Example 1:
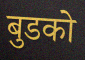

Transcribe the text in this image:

बुडको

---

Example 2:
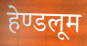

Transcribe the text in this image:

हेण्डलूम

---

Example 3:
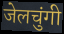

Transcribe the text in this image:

जेलचुंगी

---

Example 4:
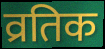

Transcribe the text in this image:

व्रतिक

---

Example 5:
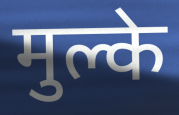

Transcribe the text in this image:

मुल्के